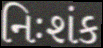
નિઃશંક